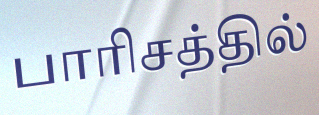
பாரிசத்தில்